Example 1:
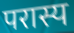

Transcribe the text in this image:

परास्य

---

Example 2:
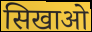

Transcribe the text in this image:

सिखाओ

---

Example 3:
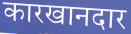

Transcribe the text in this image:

कारखानदार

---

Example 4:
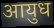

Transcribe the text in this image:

आयुध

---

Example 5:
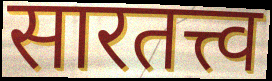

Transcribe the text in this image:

सारतत्त्व